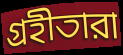
গ্রহীতারা